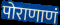
पोराणाणं